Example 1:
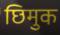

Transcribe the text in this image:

छिमुक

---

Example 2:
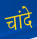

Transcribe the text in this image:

चांदे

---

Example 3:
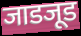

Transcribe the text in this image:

जाडजूड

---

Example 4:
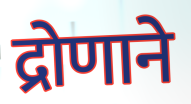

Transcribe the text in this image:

द्रोणाने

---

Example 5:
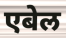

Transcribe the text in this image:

एबेल